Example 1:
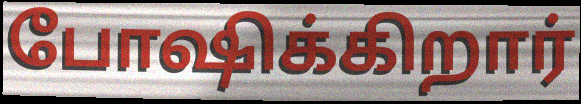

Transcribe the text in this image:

போஷிக்கிறார்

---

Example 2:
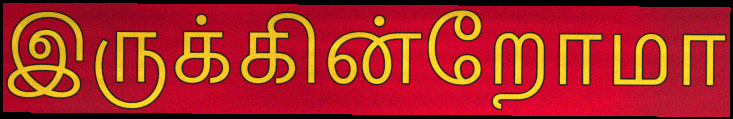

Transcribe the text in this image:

இருக்கின்றோமா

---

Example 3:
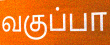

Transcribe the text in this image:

வகுப்பா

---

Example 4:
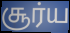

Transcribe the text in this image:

சூர்ய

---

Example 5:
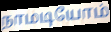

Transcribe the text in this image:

நாமடியோம்